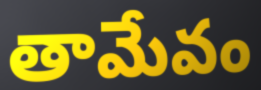
తామేవం